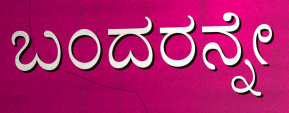
ಬಂದರನ್ನೇ